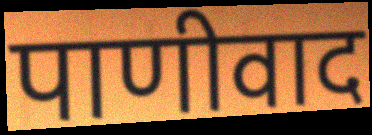
पाणीवाद